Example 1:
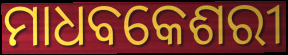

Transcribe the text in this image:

ମାଧବକେଶରୀ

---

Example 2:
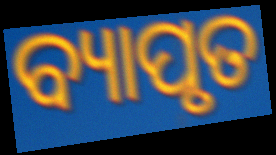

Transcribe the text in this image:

ବ୍ୟାପୃତ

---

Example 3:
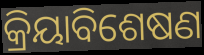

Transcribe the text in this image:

କ୍ରିୟାବିଶେଷଣ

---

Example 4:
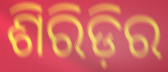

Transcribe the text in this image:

ଶିରିଡ଼ିର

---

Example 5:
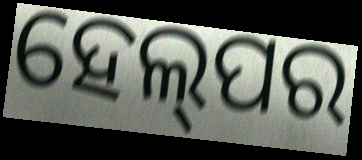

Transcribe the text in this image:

ହେଲ୍‌ପର